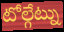
టోల్గేట్ను